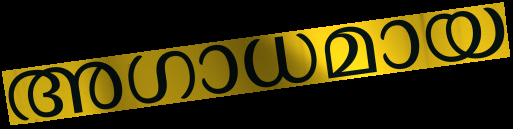
അഗാധമായ